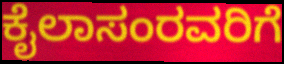
ಕೈಲಾಸಂರವರಿಗೆ